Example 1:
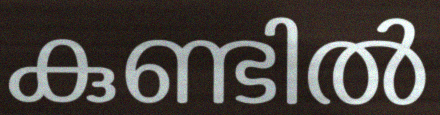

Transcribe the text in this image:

കുണ്ടിൽ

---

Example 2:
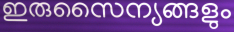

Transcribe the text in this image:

ഇരുസൈന്യങ്ങളും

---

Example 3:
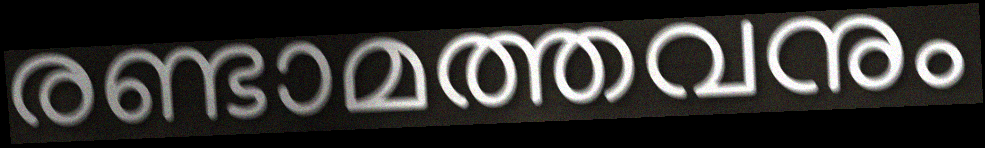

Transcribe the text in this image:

രണ്ടാമത്തവനും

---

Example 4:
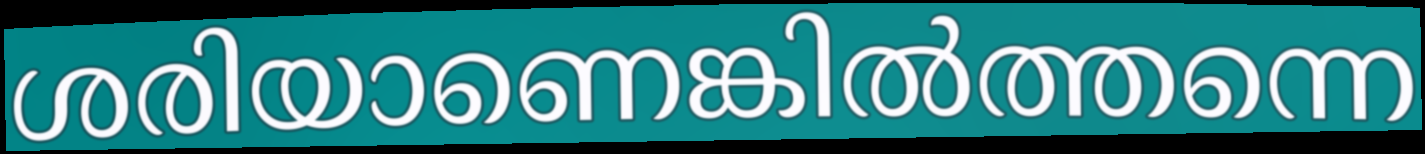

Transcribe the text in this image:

ശരിയാണെങ്കിൽത്തന്നെ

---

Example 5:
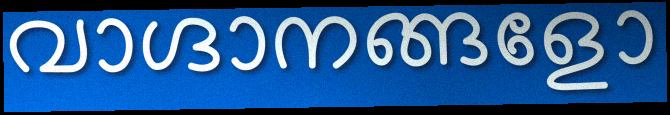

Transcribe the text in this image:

വാഗ്ദാനങ്ങളോ